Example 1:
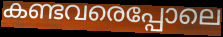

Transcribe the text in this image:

കണ്ടവരെപ്പോലെ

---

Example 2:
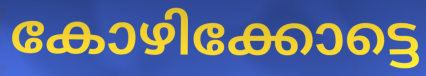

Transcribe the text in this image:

കോഴിക്കോട്ടെ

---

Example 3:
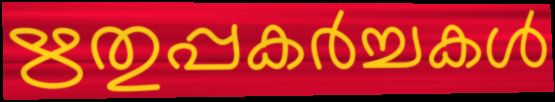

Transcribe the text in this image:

ഋതുപ്പകർച്ചകൾ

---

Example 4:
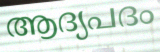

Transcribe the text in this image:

ആദ്യപദം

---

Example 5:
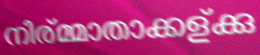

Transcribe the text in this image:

നിര്മ്മാതാക്കള്ക്കു